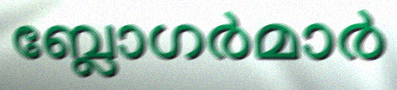
ബ്ലോഗർമാർ